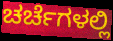
ಚರ್ಚೆಗಳಲ್ಲಿ